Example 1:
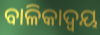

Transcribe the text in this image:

ବାଳିକାଦ୍ୱୟ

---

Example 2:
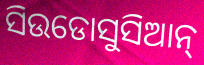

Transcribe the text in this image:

ସିଉଡୋସୁସିଆନ୍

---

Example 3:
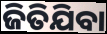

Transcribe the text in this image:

ଜିତିଯିବା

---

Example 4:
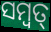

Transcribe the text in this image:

ସମ୍ବତ୍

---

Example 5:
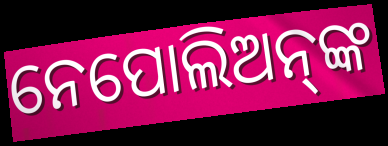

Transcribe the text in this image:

ନେପୋଲିଅନ୍‌ଙ୍କ